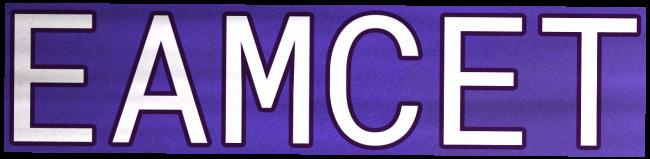
EAMCET